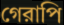
গেরাপি